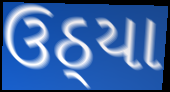
ઉઠ્યા